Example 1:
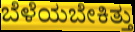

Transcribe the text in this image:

ಬೆಳೆಯಬೇಕಿತ್ತು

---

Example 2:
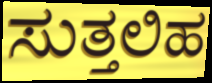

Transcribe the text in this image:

ಸುತ್ತಲಿಹ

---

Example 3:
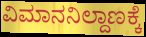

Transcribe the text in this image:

ವಿಮಾನನಿಲ್ದಾಣಕ್ಕೆ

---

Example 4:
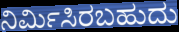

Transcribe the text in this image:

ನಿರ್ಮಿಸಿರಬಹುದು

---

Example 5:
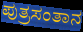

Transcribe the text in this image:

ಪುತ್ರಸಂತಾನ